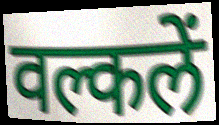
वल्कलें